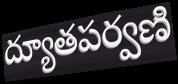
ద్యూతపర్వణి